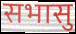
सभासु